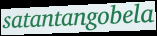
satantangobela